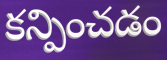
కన్పించడం